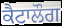
ਕੈਟਾਲੌਗ